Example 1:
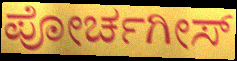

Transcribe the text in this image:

ಪೋರ್ಚಗೀಸ್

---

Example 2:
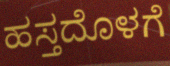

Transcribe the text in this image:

ಹಸ್ತದೊಳಗೆ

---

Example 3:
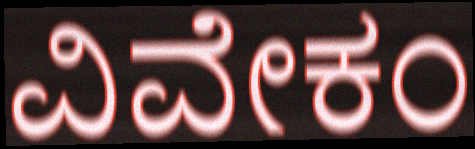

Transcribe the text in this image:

ವಿವೇಕಂ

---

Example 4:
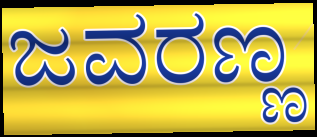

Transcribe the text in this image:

ಜವರಣ್ಣ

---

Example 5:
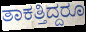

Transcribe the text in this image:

ತಾಕತ್ತಿದ್ದರೂ